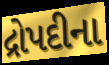
દ્રોપદીના